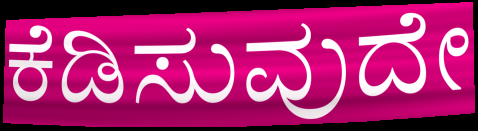
ಕೆಡಿಸುವುದೇ